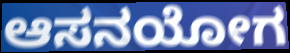
ಆಸನಯೋಗ